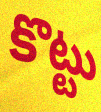
కొట్టు